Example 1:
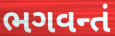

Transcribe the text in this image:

ભગવન્તં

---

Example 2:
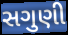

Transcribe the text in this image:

સગુણી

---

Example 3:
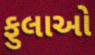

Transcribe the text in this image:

ફુલાઓ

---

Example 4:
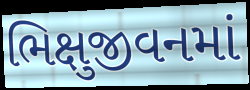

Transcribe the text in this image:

ભિક્ષુજીવનમાં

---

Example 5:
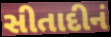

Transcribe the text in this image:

સીતાદીનં